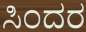
ಸಿಂದರ